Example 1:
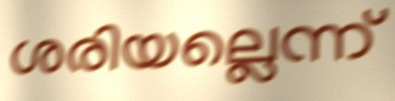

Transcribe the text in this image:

ശരിയല്ലെന്ന്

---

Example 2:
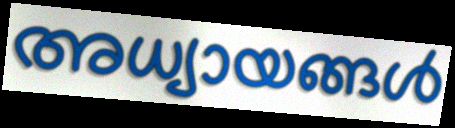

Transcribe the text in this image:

അധ്യായങ്ങൾ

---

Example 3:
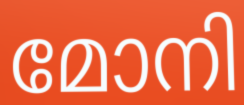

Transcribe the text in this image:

മോനി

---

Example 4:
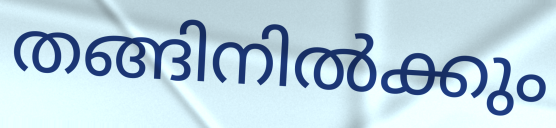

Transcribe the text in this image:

തങ്ങിനിൽക്കും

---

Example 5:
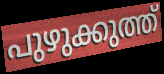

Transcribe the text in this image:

പുഴുക്കുത്ത്